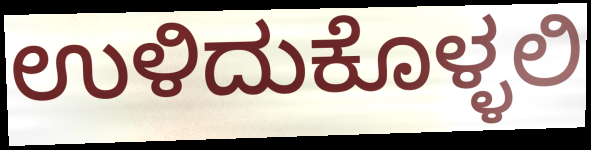
ಉಳಿದುಕೊಳ್ಳಲಿ